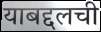
याबद्दलची